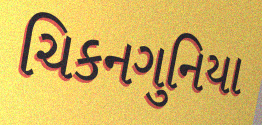
ચિકનગુનિયા